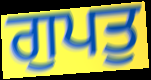
ਗੁਪਤੁ